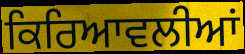
ਕਿਰਿਆਵਲੀਆਂ